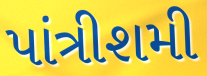
પાંત્રીશમી